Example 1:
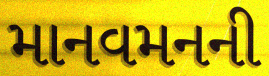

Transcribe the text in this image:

માનવમનની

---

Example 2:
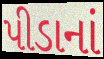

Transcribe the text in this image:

પીડાનાં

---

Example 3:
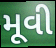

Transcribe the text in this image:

મૂવી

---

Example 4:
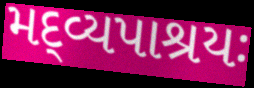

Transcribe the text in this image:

મદ્વ્યપાશ્રયઃ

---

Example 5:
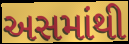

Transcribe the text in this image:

અસમાંથી